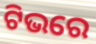
ଟିଭରେ